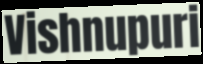
Vishnupuri